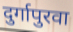
दुर्गापुरवा